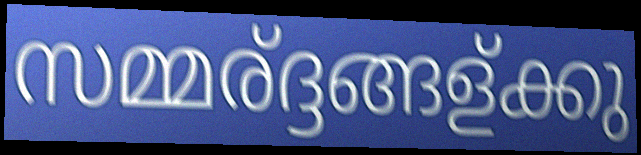
സമ്മര്ദ്ദങ്ങള്ക്കു